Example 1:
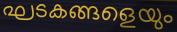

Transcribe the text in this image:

ഘടകങ്ങളെയും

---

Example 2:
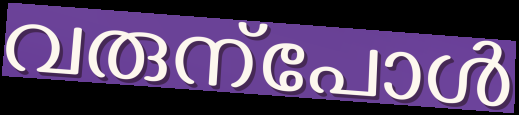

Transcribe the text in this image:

വരുന്പോൾ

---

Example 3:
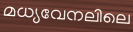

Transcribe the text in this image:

മധ്യവേനലിലെ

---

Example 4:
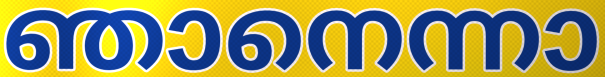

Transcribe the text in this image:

ഞാനെന്നാ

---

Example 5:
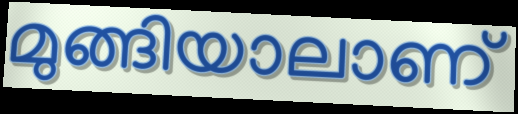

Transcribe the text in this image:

മുങ്ങിയാലാണ്